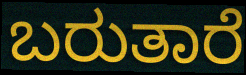
ಬರುತಾರೆ